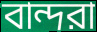
বান্দরা